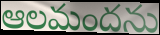
ఆలమందను